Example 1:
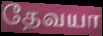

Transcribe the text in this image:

தேவயா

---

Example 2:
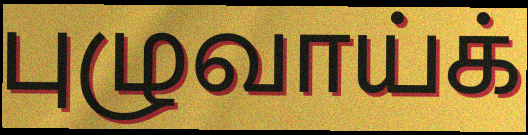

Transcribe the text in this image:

புழுவாய்க்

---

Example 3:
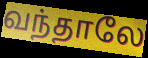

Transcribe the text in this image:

வந்தாலே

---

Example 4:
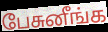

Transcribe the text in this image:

பேசுனீங்க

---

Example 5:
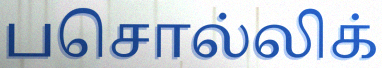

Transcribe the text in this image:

பசொல்லிக்